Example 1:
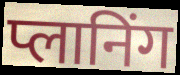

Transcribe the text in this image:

प्‍लानिंग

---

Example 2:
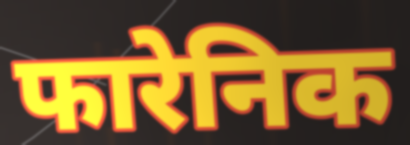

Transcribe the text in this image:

फारेनिक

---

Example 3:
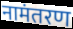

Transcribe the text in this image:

नामंतरण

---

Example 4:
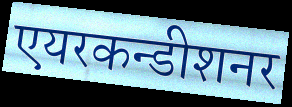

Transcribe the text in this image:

एयरकन्डीशनर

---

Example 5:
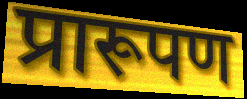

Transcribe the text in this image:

प्रारूपण